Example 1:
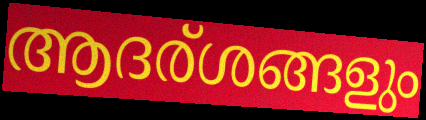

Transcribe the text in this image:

ആദര്ശങ്ങളും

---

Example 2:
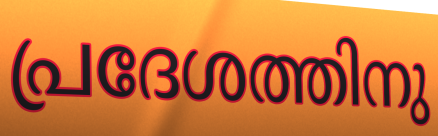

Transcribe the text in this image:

പ്രദേശത്തിനു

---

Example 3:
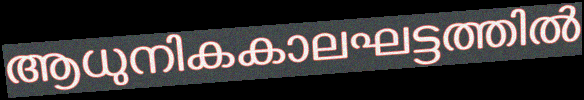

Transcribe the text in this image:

ആധുനികകാലഘട്ടത്തിൽ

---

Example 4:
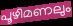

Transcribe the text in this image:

പൂഴിമണലും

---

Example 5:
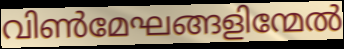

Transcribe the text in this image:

വിൺമേഘങ്ങളിന്മേൽ